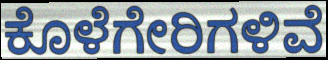
ಕೊಳೆಗೇರಿಗಳಿವೆ